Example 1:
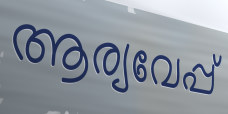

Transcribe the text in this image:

ആര്യവേപ്പ്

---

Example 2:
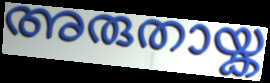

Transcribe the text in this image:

അരുതായ്ക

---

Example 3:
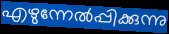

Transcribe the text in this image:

എഴുന്നേൽപ്പിക്കുന്നു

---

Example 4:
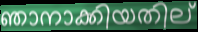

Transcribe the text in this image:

ഞാനാക്കിയതില്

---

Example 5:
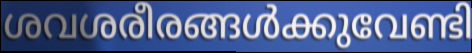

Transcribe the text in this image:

ശവശരീരങ്ങൾക്കുവേണ്ടി